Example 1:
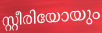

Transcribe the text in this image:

സ്റ്റീരിയോയും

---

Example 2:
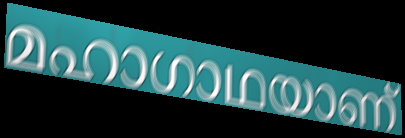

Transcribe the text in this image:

മഹാഗാഥയാണ്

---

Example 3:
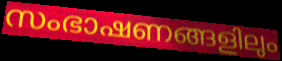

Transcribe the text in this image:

സംഭാഷണങ്ങളിലും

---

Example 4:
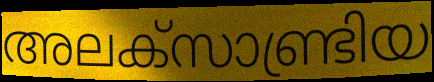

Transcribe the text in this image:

അലക്സാണ്ട്രിയ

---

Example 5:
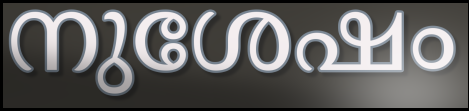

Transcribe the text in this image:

നുശേഷം